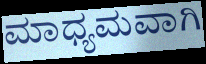
ಮಾಧ್ಯಮವಾಗಿ